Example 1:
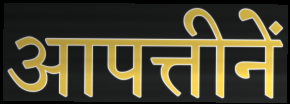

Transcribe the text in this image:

आपत्तीनें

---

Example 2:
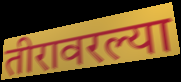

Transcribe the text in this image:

तीरावरल्या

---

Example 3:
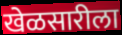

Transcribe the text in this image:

खेळसारीला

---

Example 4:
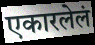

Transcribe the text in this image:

एकारलेलं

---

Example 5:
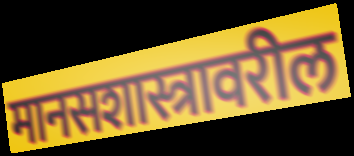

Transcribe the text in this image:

मानसशास्त्रावरील